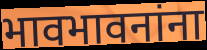
भावभावनांना